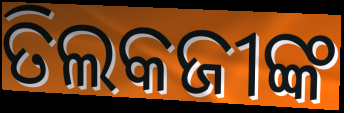
ତିଲକଜୀଙ୍କ